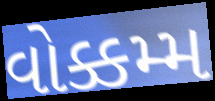
વોક્કમ્મ